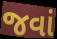
જવાં